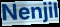
Nenjil